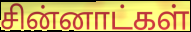
சின்னாட்கள்